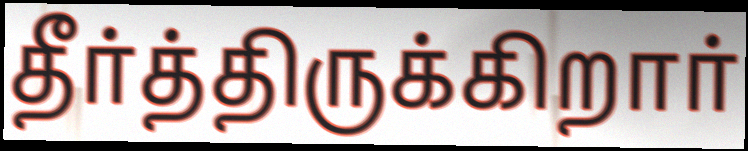
தீர்த்திருக்கிறார்